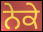
ਨੇਕੇ